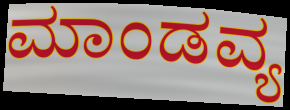
ಮಾಂಡವ್ಯ